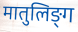
मातुलिङ्ग